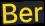
Ber